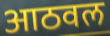
आठवल